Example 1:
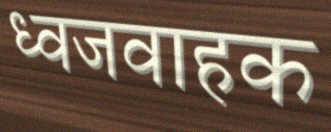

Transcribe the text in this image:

ध्वजवाहक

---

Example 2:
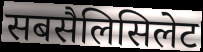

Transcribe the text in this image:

सबसैलिसिलेट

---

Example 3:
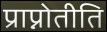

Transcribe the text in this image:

प्राप्नोतीति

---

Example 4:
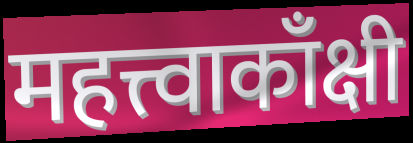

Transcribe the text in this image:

महत्त्वाकाँक्षी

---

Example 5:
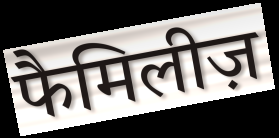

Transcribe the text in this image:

फैमिलीज़